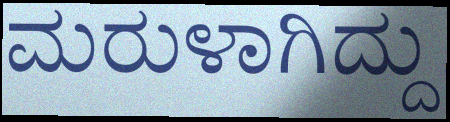
ಮರುಳಾಗಿದ್ದು